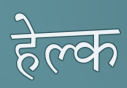
हेल्क